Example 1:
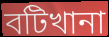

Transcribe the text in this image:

বটিখানা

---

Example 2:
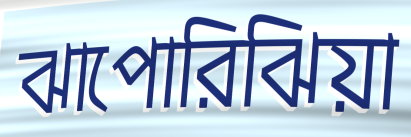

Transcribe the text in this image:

ঝাপোরিঝিয়া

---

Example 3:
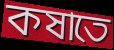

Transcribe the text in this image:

কষাতে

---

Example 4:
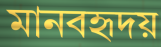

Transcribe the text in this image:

মানবহৃদয়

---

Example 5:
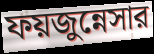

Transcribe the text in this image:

ফয়জুন্নেসার